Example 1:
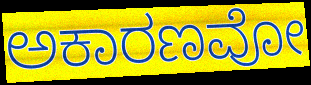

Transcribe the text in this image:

ಅಕಾರಣವೋ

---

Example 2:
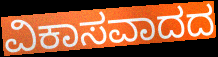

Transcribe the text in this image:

ವಿಕಾಸವಾದದ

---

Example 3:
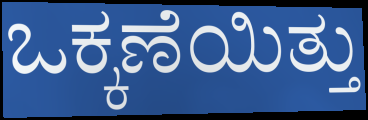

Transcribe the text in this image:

ಒಕ್ಕಣೆಯಿತ್ತು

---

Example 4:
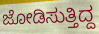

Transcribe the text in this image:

ಜೋಡಿಸುತ್ತಿದ್ದ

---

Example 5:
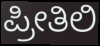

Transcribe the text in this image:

ಪ್ರೀತಿಲಿ